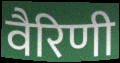
वैरिणी